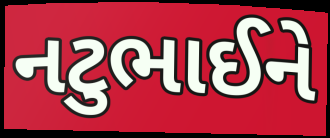
નટુભાઈને